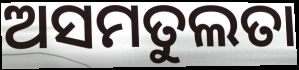
ଅସମତୁଲତା